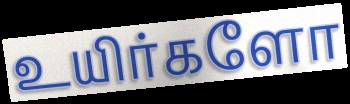
உயிர்களோ